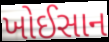
ખોઈસાન